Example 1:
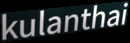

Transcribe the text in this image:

kulanthai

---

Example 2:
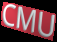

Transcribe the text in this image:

CMU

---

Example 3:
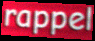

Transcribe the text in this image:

rappel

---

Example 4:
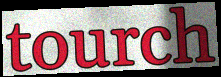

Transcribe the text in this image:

tourch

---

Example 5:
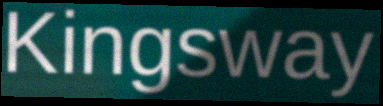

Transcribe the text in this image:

Kingsway